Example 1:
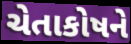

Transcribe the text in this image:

ચેતાકોષને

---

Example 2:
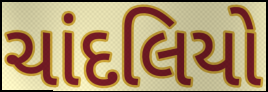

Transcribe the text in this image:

ચાંદલિયો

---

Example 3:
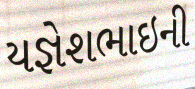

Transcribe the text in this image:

યજ્ઞેશભાઇની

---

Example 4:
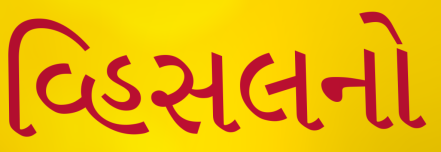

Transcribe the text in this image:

વ્હિસલનો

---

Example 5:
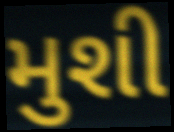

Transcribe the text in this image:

મુશી